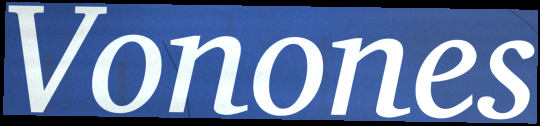
Vonones